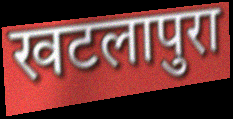
खटलापुरा